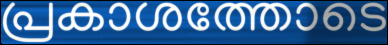
പ്രകാശത്തോടെ